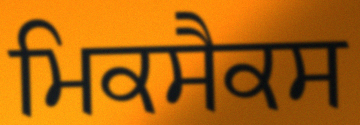
ਮਿਕਸੈਕਸ